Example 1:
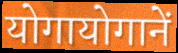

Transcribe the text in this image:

योगायोगानें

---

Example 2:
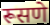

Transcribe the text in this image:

रूसणे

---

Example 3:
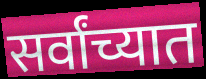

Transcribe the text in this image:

सर्वांच्यात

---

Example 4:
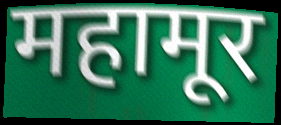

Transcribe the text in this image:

महामूर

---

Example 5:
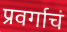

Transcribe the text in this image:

प्रवर्गाचं